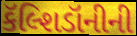
કૅલ્શિડૉનીની